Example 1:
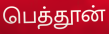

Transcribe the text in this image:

பெத்தூன்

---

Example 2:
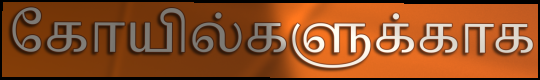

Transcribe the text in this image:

கோயில்களுக்காக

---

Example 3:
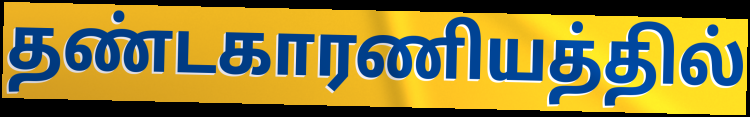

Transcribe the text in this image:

தண்டகாரணியத்தில்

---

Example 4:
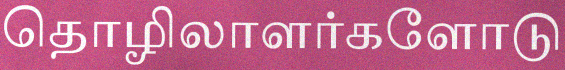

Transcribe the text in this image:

தொழிலாளர்களோடு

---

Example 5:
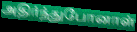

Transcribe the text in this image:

அதிர்ந்துபோனாள்